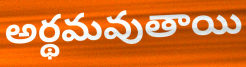
అర్థమవుతాయి